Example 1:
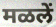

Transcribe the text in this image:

मळलें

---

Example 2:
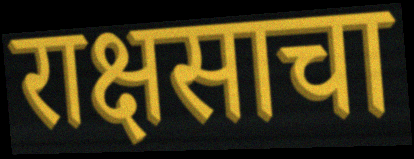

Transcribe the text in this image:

राक्षसाचा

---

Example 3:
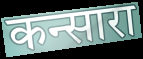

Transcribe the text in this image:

कन्सारा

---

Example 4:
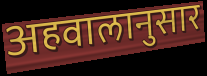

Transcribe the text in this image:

अहवालानुसार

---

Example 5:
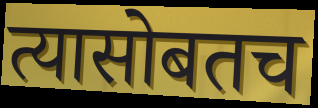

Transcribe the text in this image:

त्यासोबतच